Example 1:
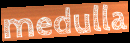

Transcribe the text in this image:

medulla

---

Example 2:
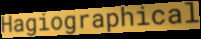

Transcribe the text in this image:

Hagiographical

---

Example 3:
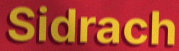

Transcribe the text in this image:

Sidrach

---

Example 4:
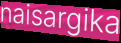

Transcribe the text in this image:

naisargika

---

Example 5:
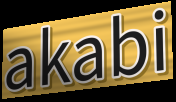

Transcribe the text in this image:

akabi